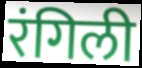
रंगिली